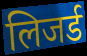
लिजर्ड